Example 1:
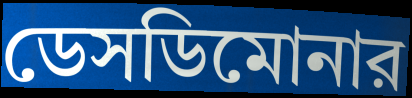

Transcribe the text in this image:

ডেসডিমোনার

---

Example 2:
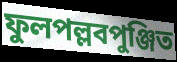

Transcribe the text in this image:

ফুলপল্লবপুঞ্জিত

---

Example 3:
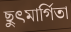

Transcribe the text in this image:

ছুৎমার্গিতা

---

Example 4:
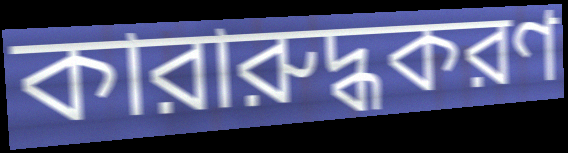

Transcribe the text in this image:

কারারুদ্ধকরণ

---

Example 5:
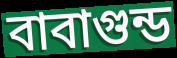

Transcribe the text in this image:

বাবাগুন্ড